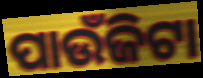
ପାଉଁଜିଟା